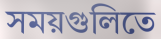
সময়গুলিতে